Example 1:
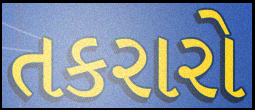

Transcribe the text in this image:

તકરારો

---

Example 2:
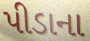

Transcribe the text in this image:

પીડાના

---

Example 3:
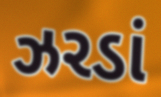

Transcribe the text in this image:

ઝરડાં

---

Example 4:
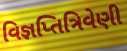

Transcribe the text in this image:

વિજ્ઞપ્તિત્રિવેણી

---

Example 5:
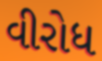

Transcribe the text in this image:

વીરોધ